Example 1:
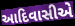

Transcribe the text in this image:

આદિવાસીએ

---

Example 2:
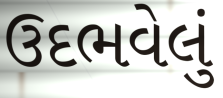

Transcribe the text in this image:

ઉદભવેલું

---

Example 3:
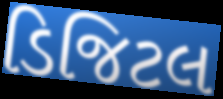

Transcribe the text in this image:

ડિજિટલ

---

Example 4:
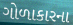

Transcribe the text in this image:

ગોળાકારના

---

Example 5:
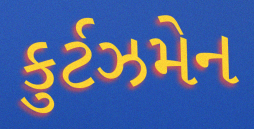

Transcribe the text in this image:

કુર્ટઝમેન